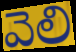
వెలి